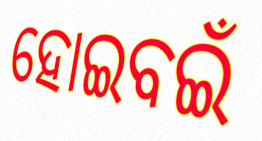
ହୋଇବଇଁ